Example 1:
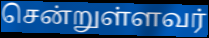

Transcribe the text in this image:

சென்றுள்ளவர்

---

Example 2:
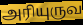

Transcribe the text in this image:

அரியுருவ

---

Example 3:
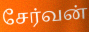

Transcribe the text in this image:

சேர்வன்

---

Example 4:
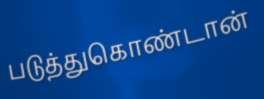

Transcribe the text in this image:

படுத்துகொண்டான்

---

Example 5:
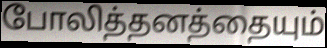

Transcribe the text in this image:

போலித்தனத்தையும்